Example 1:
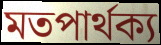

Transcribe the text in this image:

মতপার্থক্য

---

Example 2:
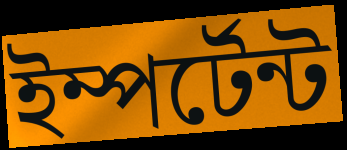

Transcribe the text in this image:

ইম্পর্টেন্ট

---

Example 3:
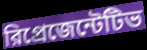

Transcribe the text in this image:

রিপ্রেজেন্টেটিভ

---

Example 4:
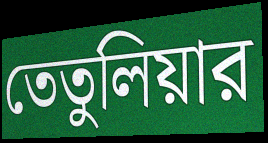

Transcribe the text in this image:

তেতুলিয়ার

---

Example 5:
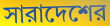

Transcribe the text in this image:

সারাদেশের